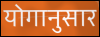
योगानुसार